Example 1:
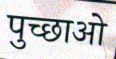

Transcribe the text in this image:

पुच्छाओ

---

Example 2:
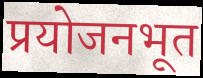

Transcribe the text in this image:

प्रयोजनभूत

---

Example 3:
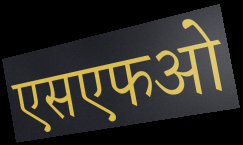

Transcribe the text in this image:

एसएफओ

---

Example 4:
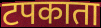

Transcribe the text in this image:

टपकाता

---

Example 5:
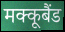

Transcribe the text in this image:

मक्कूबैंड